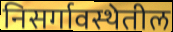
निसर्गावस्थेतील